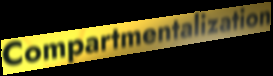
Compartmentalization